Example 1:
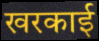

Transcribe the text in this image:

खरकाई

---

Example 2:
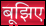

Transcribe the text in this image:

बूझिए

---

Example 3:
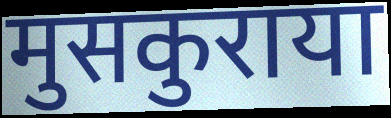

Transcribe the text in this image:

मुसकुराया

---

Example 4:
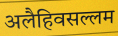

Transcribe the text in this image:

अलैहिवसल्लम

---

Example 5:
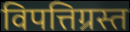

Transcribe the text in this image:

विपत्तिग्रस्त